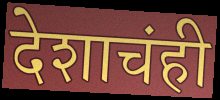
देशाचंही